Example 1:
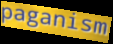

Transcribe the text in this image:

paganism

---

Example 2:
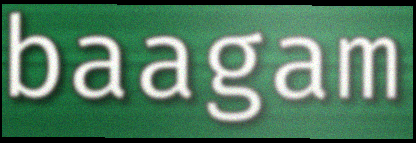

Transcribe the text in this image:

baagam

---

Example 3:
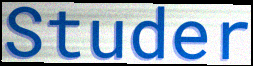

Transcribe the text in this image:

Studer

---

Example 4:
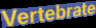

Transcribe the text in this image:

Vertebrate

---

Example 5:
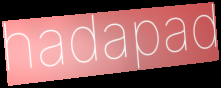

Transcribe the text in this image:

hadapad